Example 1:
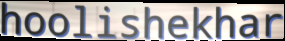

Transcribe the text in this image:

hoolishekhar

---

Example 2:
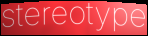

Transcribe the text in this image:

stereotype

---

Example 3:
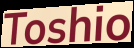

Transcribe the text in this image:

Toshio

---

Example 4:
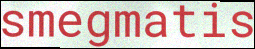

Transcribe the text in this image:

smegmatis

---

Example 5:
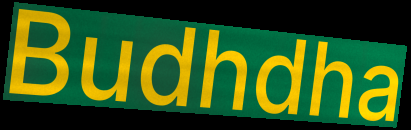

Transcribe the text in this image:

Budhdha